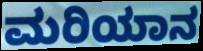
ಮರಿಯಾನ